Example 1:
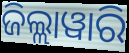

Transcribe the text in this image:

ଜିଲ୍ଲାୱାରି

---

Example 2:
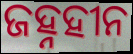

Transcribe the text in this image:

ଜହ୍ନହୀନ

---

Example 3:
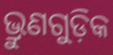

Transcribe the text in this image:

ଭ୍ରୁଣଗୁଡ଼ିକ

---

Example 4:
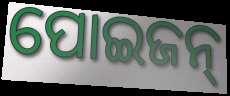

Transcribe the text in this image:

ପୋଇଜନ୍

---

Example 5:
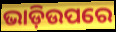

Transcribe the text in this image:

ଭାଡ଼ିଉପରେ